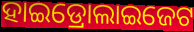
ହାଇଡ୍ରୋଲାଇଜେଟ